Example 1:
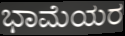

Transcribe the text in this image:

ಭಾಮೆಯರ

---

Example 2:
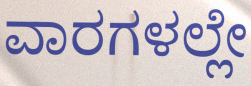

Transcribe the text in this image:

ವಾರಗಳಲ್ಲೇ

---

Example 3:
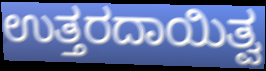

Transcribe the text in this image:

ಉತ್ತರದಾಯಿತ್ವ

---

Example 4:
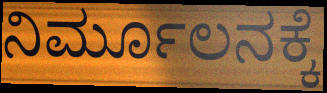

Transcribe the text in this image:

ನಿರ್ಮೂಲನಕ್ಕೆ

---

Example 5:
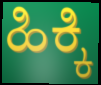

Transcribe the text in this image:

ಹಿಕ್ಕಿ